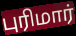
புரிமார்